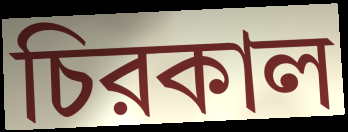
চিরকাল